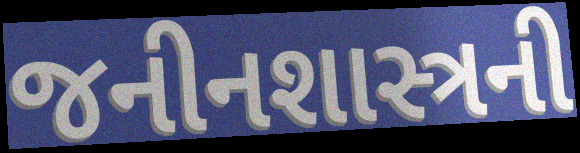
જનીનશાસ્ત્રની